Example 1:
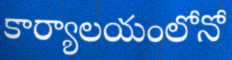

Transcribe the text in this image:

కార్యాలయంలోనో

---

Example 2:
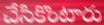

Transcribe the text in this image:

చేసికొంటారు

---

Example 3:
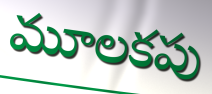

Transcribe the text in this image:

మూలకపు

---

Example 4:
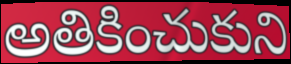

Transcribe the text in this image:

అతికించుకుని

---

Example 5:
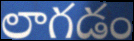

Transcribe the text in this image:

లాగడం